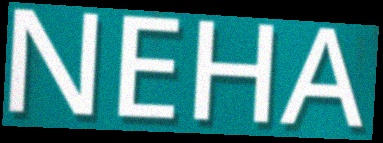
NEHA